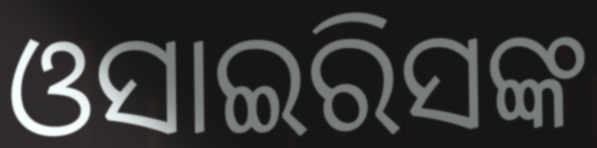
ଓସାଇରିସଙ୍କ